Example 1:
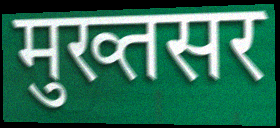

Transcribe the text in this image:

मुख्तसर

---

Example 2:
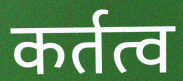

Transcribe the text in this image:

कर्तत्व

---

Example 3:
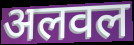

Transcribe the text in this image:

अलवल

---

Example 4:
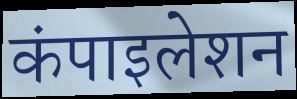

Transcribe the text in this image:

कंपाइलेशन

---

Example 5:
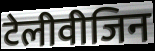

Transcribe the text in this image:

टेलीवीजिन